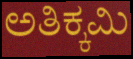
ಅತಿಕ್ಕಮಿ